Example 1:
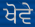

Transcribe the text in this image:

ਖੋਵੇ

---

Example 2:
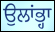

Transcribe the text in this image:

ਉਲਾਂਭ੍ਹਾ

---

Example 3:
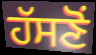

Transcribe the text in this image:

ਹੱਸਣੋਂ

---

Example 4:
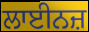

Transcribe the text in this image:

ਲਾਈਨਜ਼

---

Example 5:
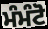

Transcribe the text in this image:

ਮੰਮੰਟੋ